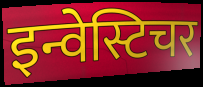
इन्वेस्टिचर